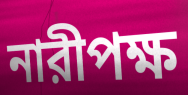
নারীপক্ষ